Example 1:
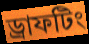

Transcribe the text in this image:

ড্রাফটিং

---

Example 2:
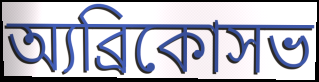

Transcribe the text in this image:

অ্যব্রিকোসভ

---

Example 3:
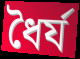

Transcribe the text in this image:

ধৈর্য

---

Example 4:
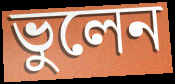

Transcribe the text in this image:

ভুলেন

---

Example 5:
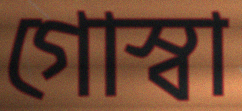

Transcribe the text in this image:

গোস্বা